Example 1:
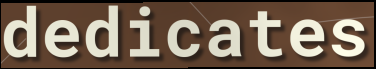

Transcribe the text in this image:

dedicates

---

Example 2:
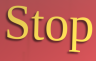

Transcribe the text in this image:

Stop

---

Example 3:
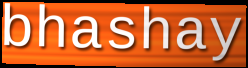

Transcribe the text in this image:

bhashay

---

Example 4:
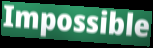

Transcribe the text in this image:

Impossible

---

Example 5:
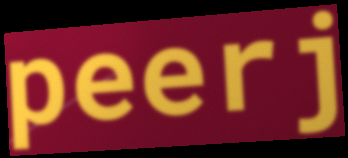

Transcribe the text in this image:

peerj